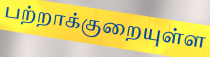
பற்றாக்குறையுள்ள